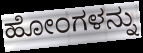
ಹೋಂಗಳನ್ನು